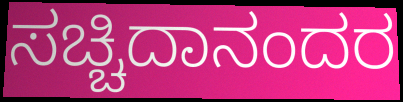
ಸಚ್ಚಿದಾನಂದರ